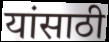
यांसाठी